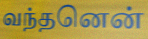
வந்தனென்